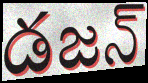
డజన్